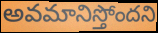
అవమానిస్తోందని